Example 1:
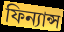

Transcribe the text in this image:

ফিন্যান্স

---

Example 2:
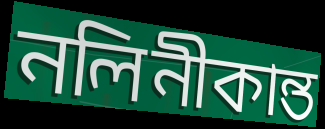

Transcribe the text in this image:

নলিনীকান্ত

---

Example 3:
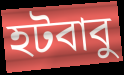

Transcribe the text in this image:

হটবাবু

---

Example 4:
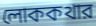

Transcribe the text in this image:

লোককথার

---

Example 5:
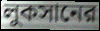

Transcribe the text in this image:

লুকসানের